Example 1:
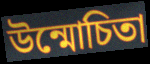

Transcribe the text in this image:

উন্মোচিতা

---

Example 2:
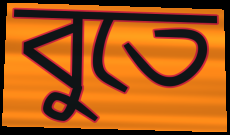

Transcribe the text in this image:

বুতে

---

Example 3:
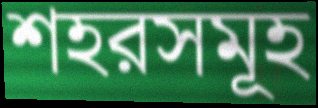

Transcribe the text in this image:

শহরসমূহ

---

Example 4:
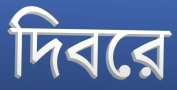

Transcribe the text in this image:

দিবরে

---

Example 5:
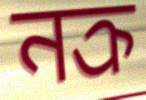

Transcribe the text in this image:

নক্র